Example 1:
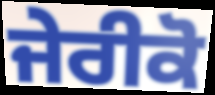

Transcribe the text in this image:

ਜੇਰੀਕੋ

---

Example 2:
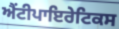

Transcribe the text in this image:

ਐਂਟੀਪਾਇਰੇਟਿਕਸ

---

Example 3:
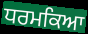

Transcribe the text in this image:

ਧਰਮਕਿਆ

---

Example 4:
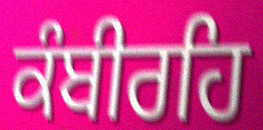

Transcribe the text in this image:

ਕੰਬੀਰਹਿ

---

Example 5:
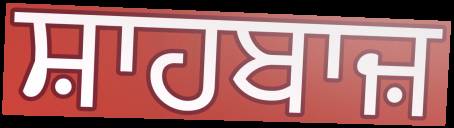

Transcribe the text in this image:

ਸ਼ਾਹਬਾਜ਼